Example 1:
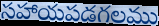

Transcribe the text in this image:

సహాయపడగలము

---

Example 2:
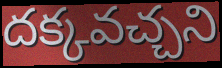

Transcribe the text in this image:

దక్కవచ్చని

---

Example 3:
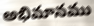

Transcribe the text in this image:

అభిమానము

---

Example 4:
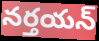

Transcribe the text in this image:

నర్తయన్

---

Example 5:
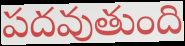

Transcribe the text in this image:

పదవుతుంది